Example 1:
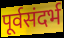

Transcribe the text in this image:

पूर्वसंदर्भ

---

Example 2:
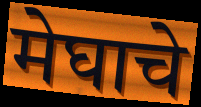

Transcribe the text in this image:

मेघाचे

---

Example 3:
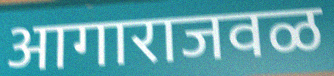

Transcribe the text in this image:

आगाराजवळ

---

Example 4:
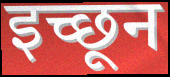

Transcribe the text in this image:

इच्छून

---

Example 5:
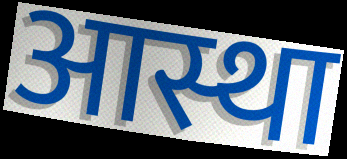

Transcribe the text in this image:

आस्था